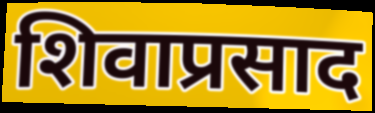
शिवाप्रसाद